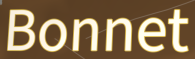
Bonnet